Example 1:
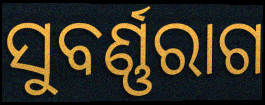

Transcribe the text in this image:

ସୁବର୍ଣ୍ଣରାଗ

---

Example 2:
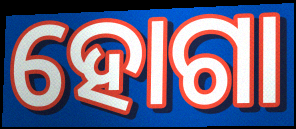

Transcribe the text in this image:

ହୋଗା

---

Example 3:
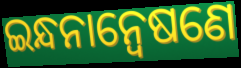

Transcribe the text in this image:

ଇନ୍ଧନାନ୍ଵେଷଣେ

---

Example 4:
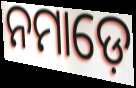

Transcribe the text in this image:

ନମାଡ଼େ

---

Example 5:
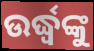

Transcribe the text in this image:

ଉର୍ଦ୍ଧ୍ୱଙ୍କୁ